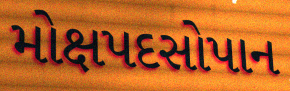
મોક્ષપદસોપાન